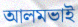
আলমভাই